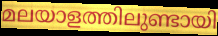
മലയാളത്തിലുണ്ടായി